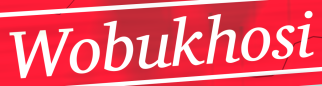
Wobukhosi